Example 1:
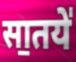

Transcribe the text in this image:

सा॒तये॑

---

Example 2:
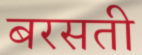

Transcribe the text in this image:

बरसती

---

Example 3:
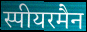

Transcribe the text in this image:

स्पीयरमैन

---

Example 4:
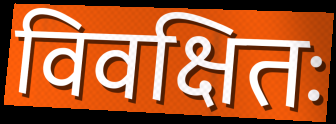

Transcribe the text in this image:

विवक्षितः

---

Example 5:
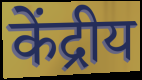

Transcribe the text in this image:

केंद्रीय